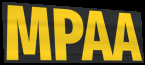
MPAA